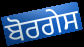
ਬੋਰਗੇਸ